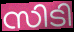
സിടി